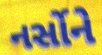
નર્સોને